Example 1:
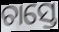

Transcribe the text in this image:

ଚାସ୍ତେ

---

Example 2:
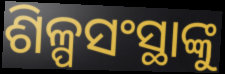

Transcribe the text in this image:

ଶିଳ୍ପସଂସ୍ଥାଙ୍କୁ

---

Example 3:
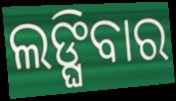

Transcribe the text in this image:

ଲଙ୍ଘିବାର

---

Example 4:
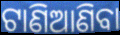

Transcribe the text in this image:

ଟାଣିଆଣିବା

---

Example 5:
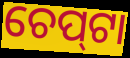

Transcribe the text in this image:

ଚେପ୍‌ଟା